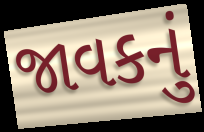
જાવકનું